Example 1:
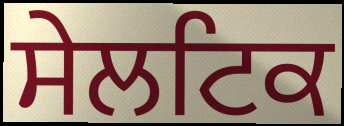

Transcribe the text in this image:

ਸੇਲਟਿਕ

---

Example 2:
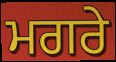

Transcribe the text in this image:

ਮਗਰੇ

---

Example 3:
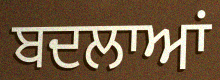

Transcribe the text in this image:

ਬਦਲਾਆਂ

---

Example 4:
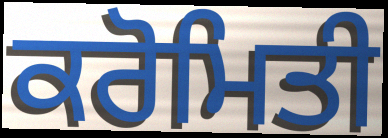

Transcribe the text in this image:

ਕਰੋਮਿਤੀ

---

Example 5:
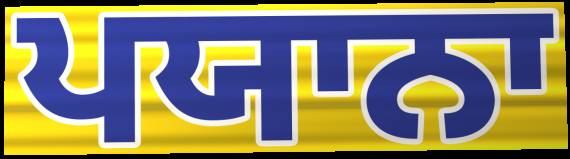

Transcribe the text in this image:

ਪਯਾਨਾ